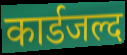
कार्डजल्द